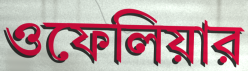
ওফেলিয়ার